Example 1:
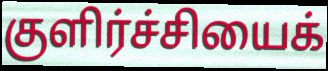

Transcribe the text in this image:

குளிர்ச்சியைக்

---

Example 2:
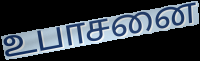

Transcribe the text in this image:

உபாசனை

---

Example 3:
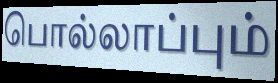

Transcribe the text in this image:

பொல்லாப்பும்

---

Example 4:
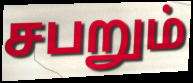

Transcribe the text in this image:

சபறும்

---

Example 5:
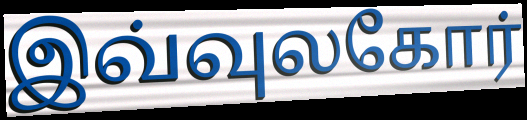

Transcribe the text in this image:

இவ்வுலகோர்